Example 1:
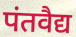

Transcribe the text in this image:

पंतवैद्य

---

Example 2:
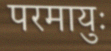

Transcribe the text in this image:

परमायुः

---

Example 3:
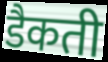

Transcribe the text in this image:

डैकती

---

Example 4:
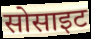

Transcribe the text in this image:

सोसाइट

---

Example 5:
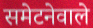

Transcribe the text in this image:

समेटनेवाले